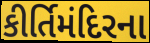
કીર્તિમંદિરના